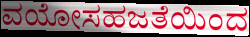
ವಯೋಸಹಜತೆಯಿಂದ